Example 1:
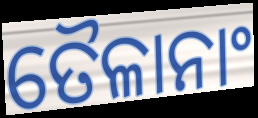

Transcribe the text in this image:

ତୈଳାନାଂ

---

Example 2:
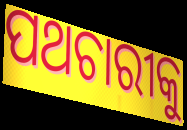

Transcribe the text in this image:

ପଥଚାରୀକୁ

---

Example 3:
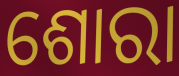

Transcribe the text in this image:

ଶୋରା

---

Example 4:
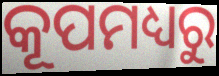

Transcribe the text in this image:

କୂପମଧ୍ୟରୁ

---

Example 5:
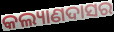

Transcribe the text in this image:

କଲ୍ୟାଣଦାସର